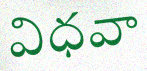
విధవా